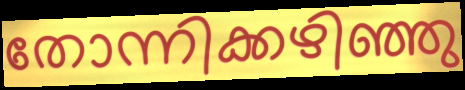
തോന്നിക്കഴിഞ്ഞു